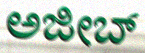
ಅಜೀಬ್